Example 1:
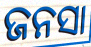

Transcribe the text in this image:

ଜନସା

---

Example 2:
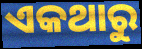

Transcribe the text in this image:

ଏକଥାରୁ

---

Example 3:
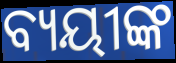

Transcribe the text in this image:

ବ୍ୟୟୀଙ୍କ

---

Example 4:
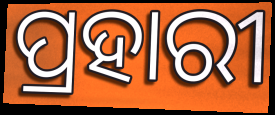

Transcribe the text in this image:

ପ୍ରହାରୀ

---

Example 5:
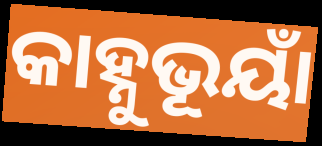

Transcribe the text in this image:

କାହ୍ନୁଭୂୟାଁ